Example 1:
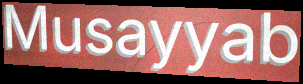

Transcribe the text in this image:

Musayyab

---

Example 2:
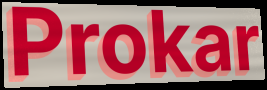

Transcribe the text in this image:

Prokar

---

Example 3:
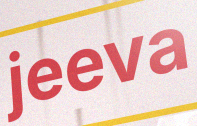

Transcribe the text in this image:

jeeva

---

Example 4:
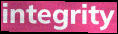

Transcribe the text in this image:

integrity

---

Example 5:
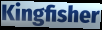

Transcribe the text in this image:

Kingfisher